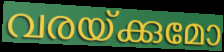
വരയ്‌ക്കുമോ